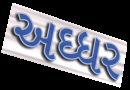
અઘ્ધર